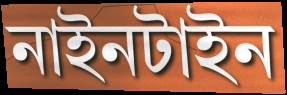
নাইনটাইন